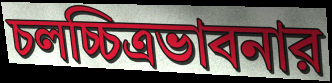
চলচ্চিত্রভাবনার